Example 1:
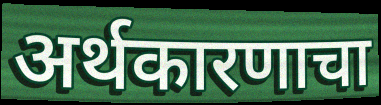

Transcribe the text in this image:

अर्थकारणाचा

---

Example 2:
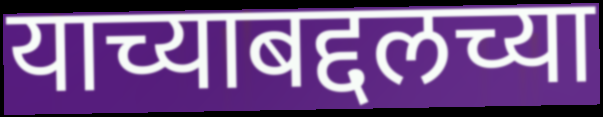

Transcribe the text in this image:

याच्याबद्दलच्या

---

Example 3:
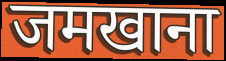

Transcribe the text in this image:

जमखाना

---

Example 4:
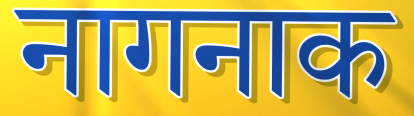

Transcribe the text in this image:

नागनाक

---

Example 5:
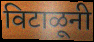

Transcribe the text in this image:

विटाळूनी